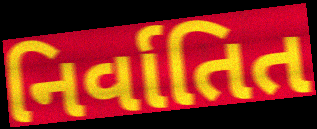
નિર્વાતિત